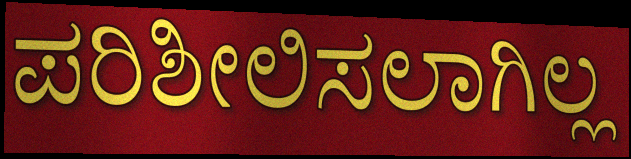
ಪರಿಶೀಲಿಸಲಾಗಿಲ್ಲ